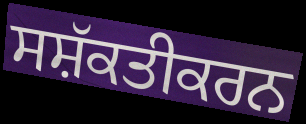
ਸਸ਼ੱਕਤੀਕਰਨ